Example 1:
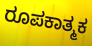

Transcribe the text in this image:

ರೂಪಕಾತ್ಮಕ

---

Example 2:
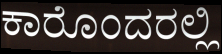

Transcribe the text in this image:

ಕಾರೊಂದರಲ್ಲಿ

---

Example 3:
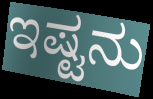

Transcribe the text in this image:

ಇಷ್ಟನು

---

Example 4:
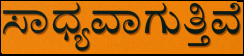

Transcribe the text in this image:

ಸಾಧ್ಯವಾಗುತ್ತಿವೆ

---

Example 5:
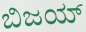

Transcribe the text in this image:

ಬಿಜಯ್